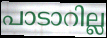
പാടാറില്ല